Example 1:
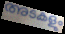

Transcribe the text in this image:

അടകളും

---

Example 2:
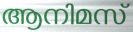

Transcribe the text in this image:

ആനിമസ്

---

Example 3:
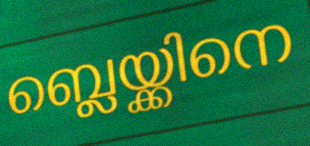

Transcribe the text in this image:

ബ്ലെയ്ക്കിനെ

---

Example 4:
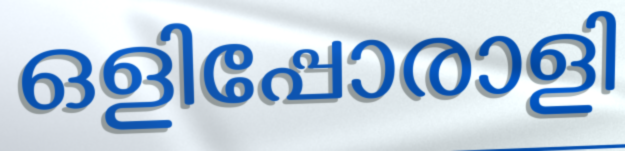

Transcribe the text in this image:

ഒളിപ്പോരാളി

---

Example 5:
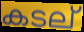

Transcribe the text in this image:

കടല്